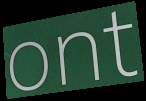
ont